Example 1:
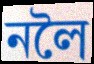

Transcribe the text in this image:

নলৈ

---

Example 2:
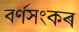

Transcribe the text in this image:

বৰ্ণসংকৰ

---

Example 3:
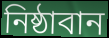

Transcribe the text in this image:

নিষ্ঠাবান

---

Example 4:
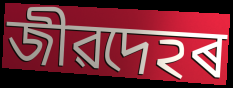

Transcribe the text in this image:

জীৱদেহৰ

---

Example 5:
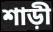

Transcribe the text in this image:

শাড়ী